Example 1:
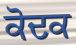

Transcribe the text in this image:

ਕੋਦਕ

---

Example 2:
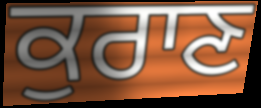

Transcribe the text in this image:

ਕੁਰਾਣ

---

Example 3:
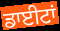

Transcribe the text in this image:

ਡਾਈਟਾਂ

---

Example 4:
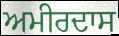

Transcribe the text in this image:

ਅਮੀਰਦਾਸ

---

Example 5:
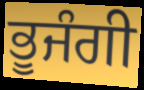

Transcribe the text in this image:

ਭੂਜੰਗੀ